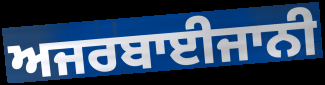
ਅਜਰਬਾਈਜਾਨੀ